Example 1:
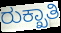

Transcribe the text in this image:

ರುಕ್ಖಾತಿ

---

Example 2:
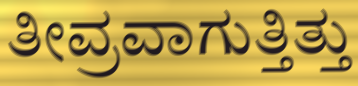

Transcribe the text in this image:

ತೀವ್ರವಾಗುತ್ತಿತ್ತು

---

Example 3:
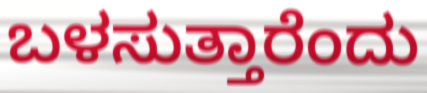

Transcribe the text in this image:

ಬಳಸುತ್ತಾರೆಂದು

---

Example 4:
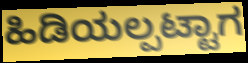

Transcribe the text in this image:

ಹಿಡಿಯಲ್ಪಟ್ಟಾಗ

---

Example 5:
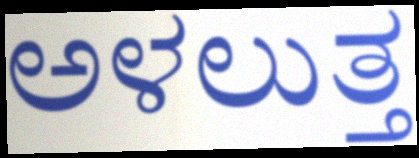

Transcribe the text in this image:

ಅಳಲುತ್ತ